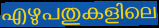
എഴുപതുകളിലെ